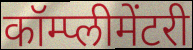
कॉम्प्लीमेंटरी